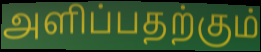
அளிப்பதற்கும்